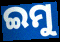
ଇମୁ